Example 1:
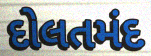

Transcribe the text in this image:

દોલતમંદ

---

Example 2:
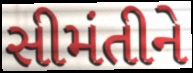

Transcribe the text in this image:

સીમંતીને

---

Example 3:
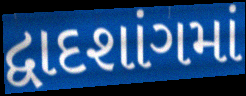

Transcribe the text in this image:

દ્વાદશાંગમાં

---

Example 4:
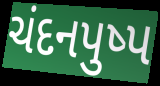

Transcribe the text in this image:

ચંદનપુષ્પ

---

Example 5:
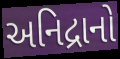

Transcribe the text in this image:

અનિદ્રાનો